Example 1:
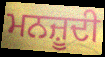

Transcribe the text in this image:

ਮਨਜ਼ੂਦੀ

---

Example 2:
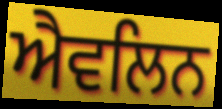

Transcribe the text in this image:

ਐਵਲਿਨ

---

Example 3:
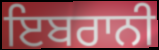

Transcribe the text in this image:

ਇਬਰਾਨੀ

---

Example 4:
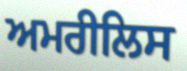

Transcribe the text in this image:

ਅਮਰੀਲਿਸ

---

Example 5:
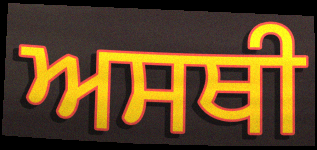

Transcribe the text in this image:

ਅਸਥੀ